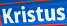
Kristus